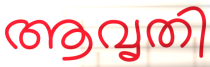
ആവൃതി